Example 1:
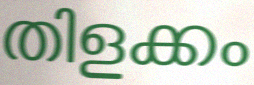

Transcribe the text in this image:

തിളക്കം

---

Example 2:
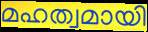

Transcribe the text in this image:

മഹത്വമായി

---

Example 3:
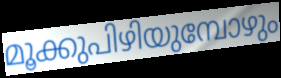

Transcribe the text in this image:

മൂക്കുപിഴിയുമ്പോഴും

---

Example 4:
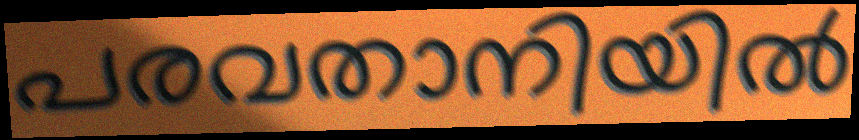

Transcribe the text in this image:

പരവതാനിയിൽ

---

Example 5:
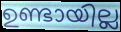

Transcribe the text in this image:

ഉണ്ടായില്ല